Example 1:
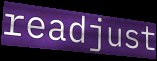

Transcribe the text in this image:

readjust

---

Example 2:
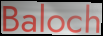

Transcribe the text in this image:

Baloch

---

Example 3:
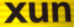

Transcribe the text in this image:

xun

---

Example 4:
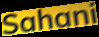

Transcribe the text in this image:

Sahani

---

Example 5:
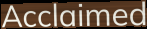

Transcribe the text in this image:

Acclaimed